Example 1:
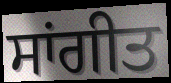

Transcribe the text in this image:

ਸਾਂਗੀਤ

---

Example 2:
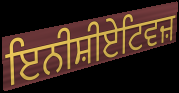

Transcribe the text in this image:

ਇਨੀਸ਼ੀਏਟਿਵਜ਼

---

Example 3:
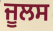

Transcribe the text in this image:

ਜੂਲਸ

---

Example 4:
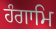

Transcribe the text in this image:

ਹੰਗਾਮਿ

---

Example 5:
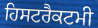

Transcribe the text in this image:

ਹਿਸਟਰੈਕਟਮੀ